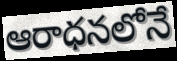
ఆరాధనలోనే